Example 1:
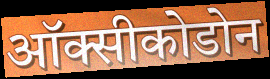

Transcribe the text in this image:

ऑक्सीकोडोन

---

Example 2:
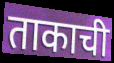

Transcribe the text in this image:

ताकाची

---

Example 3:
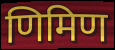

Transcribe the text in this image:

णिमिण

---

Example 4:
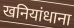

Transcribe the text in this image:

खनियांधाना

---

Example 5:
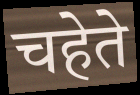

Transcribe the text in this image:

चहेते